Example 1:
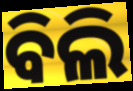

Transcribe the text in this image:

ବିଲି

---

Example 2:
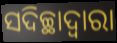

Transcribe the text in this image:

ସଦିଚ୍ଛାଦ୍ୱାରା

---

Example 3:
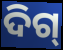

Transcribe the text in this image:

ଦିଗ୍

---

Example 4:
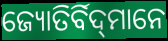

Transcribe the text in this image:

ଜ୍ୟୋତିର୍ବିଦ୍‌ମାନେ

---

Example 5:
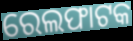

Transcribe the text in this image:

ରେଲଫାଟକ